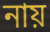
নায়